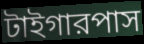
টাইগারপাস